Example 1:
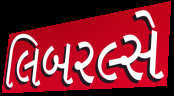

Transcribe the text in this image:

લિબરલ્સે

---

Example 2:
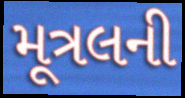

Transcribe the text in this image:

મૂત્રલની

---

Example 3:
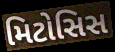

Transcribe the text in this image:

મિટોસિસ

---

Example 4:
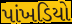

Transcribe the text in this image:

પાંખડિયો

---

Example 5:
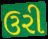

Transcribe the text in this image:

ઉરી